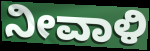
ನೀವಾಳಿ